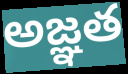
అజ్ఞత